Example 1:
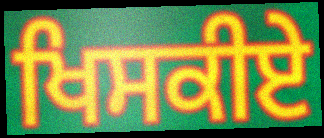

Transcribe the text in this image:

ਖਿਸਕੀਏ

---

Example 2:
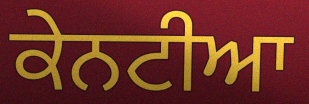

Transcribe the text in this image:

ਕੇਨਟੀਆ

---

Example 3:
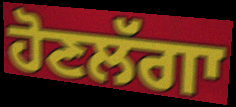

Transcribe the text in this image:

ਹੋਣਲੱਗਾ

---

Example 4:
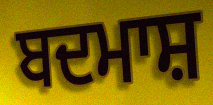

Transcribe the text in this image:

ਬਦਮਾਸ਼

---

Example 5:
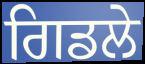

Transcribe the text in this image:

ਗਿਡਲੇ